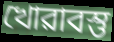
খোৱাবস্তু